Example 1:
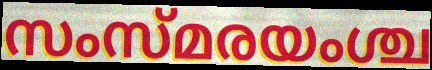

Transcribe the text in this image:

സംസ്മരയംശ്ച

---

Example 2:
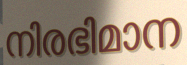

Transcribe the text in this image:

നിരഭിമാന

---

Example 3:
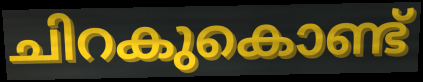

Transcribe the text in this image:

ചിറകുകൊണ്ട്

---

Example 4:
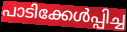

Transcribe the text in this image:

പാടിക്കേൾപ്പിച്ച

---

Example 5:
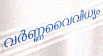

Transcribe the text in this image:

വർണ്ണവൈവിധ്യം